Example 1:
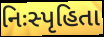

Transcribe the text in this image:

નિઃસ્પૃહિતા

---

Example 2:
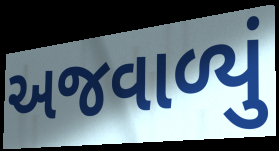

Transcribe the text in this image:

અજવાળ્યું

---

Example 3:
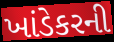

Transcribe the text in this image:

ખાંડેકરની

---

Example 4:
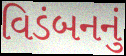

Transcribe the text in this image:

વિડંબનનું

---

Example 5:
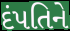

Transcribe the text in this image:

દંપતિને